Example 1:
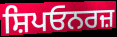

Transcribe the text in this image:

ਸ਼ਿਪਓਨਰਜ਼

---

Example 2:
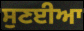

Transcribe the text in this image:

ਸੁਣਈਆ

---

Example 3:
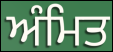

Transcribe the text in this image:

ਅੰਮਿਤ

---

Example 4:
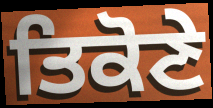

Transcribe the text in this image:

ਤਿਕੋਣੇ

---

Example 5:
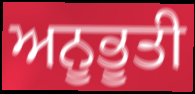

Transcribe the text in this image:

ਅਨੂਭੂਤੀ